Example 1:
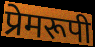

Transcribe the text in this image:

प्रेमरूपी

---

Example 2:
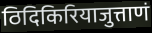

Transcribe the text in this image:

ठिदिकिरियाजुत्ताणं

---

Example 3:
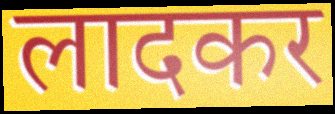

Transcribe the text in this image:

लादकर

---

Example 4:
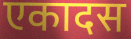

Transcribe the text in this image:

एकादस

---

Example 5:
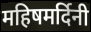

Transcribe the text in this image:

महिषमर्दिनी